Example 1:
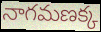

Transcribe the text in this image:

నాగమణక్క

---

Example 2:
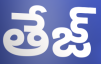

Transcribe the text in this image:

తేజ్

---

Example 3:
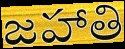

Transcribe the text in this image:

జహాతి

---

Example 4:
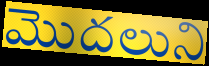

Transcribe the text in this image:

మొదలుని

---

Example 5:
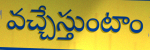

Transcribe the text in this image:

వచ్చేస్తుంటాం